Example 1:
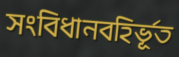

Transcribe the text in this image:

সংবিধানবহির্ভূত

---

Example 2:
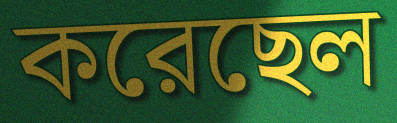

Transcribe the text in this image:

করেছেল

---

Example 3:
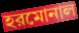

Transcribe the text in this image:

হরমোনাল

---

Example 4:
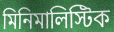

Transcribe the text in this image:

মিনিমালিস্টিক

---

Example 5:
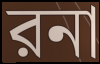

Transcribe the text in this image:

রনা